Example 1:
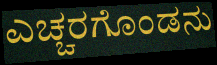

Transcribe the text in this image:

ಎಚ್ಚರಗೊಂಡನು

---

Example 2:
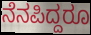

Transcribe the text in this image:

ನೆನಪಿದ್ದರೂ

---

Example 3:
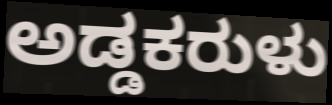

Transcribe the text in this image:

ಅಡ್ಡಕರುಳು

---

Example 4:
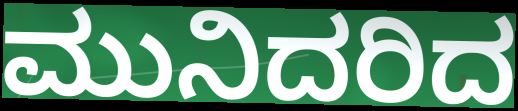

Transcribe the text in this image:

ಮುನಿದರಿದ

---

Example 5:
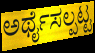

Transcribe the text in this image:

ಅರ್ಥೈಸಲ್ಪಟ್ಟ